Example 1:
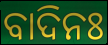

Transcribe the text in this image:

ବାଦିନଃ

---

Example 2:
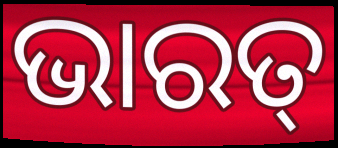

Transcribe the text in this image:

ଭାରତ୍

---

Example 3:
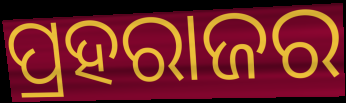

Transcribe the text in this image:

ପ୍ରହରାଜର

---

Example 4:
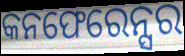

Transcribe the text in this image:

କନଫେରେନ୍ସର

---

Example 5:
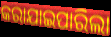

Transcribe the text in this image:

କରାଯାଇପାରିଲା